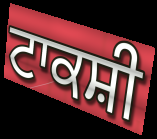
ਟਾਕਸ਼ੀ